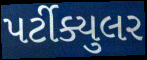
પર્ટીક્યુલર